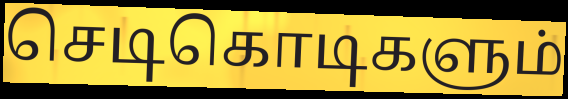
செடிகொடிகளும்